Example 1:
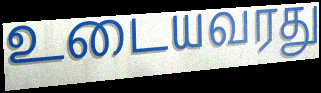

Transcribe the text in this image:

உடையவரது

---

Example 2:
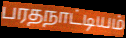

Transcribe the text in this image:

பரதநாட்டியம்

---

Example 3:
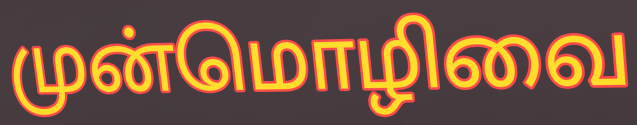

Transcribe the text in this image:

முன்மொழிவை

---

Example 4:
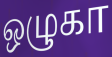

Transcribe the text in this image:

ஒழுகா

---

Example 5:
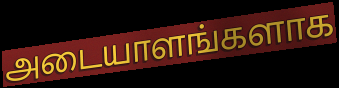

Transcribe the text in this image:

அடையாளங்களாக